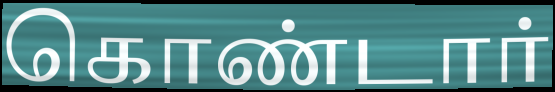
கொண்டார்